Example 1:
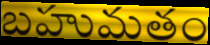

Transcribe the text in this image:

బహుమతం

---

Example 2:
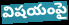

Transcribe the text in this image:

విషయంపై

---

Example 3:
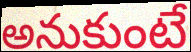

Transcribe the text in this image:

అనుకుంటే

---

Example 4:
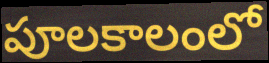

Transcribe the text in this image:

పూలకాలంలో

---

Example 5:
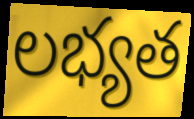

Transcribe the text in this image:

లభ్యత